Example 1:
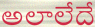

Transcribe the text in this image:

అలాలేదే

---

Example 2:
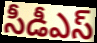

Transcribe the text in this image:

సీడీఎస్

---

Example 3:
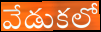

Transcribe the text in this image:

వేడుకలో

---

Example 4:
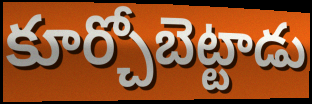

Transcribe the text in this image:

కూర్చోబెట్టాడు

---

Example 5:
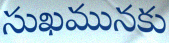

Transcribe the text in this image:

సుఖమునకు